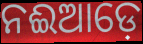
ନଈଆଡ଼େ